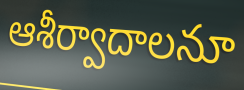
ఆశీర్వాదాలనూ